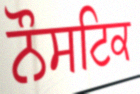
ਨੌਸਟਿਕ